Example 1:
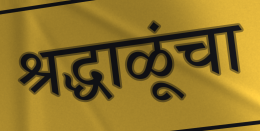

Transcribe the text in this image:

श्रद्धाळूंचा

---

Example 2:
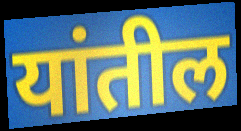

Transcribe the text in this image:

यांतील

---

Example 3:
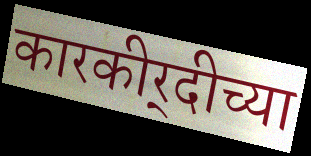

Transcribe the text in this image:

कारकीर्दीच्या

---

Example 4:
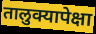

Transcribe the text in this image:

तालुक्यापेक्षा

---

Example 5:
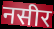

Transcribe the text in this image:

नसीर